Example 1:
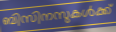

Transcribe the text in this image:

ബിസിനസുകൾക്ക്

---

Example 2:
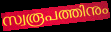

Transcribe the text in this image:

സ്വരൂപത്തിനും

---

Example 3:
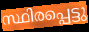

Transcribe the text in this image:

സ്ഥിരപ്പെട്ടു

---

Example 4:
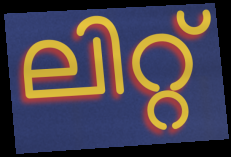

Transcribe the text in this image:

ലിറ്റ്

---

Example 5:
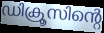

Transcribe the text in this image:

ഡിക്രൂസിന്റെ